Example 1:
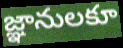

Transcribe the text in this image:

జ్ఞానులకూ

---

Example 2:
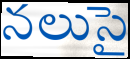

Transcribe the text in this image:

నలుసై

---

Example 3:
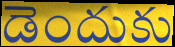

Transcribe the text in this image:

డెందుకు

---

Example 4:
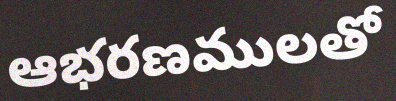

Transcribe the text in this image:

ఆభరణములతో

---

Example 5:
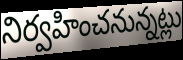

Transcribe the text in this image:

నిర్వహించనున్నట్లు